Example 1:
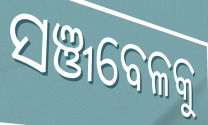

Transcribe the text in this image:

ସଞ୍ଜବେଳକୁ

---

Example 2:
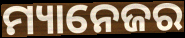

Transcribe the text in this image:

ମ୍ୟାନେଜର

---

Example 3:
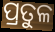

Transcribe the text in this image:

ପ୍ରତୁଳ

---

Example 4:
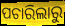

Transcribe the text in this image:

ପଚାରିଲାରୁ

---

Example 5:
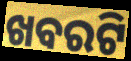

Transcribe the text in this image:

ଖବରଟି